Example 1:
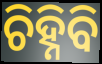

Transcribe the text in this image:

ଚିହ୍ନିବି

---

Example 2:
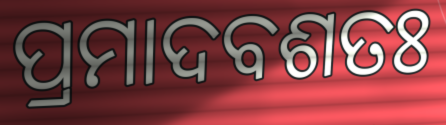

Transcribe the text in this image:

ପ୍ରମାଦବଶତଃ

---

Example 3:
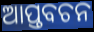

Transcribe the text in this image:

ଆପ୍ତବଚନ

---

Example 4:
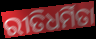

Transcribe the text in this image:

ରୀତିଧର୍ମିତା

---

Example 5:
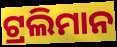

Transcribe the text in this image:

ଟ୍ରଲିମାନ